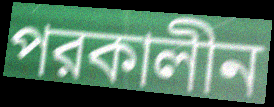
পরকালীন